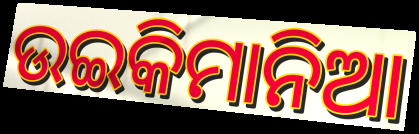
ଉଇକିମାନିଆ